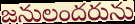
జనులందరును